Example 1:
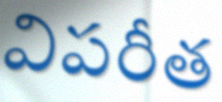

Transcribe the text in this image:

విపరీత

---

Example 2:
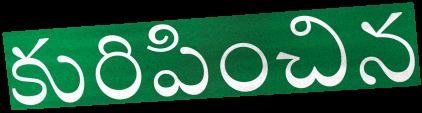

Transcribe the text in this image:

కురిపించిన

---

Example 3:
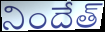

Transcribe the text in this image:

నిందేత్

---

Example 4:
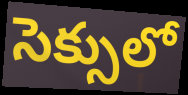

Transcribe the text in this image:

సెక్సులో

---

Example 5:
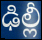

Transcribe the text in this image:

ఢిల్లీ